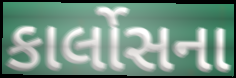
કાર્લોસના